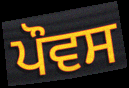
ਪੌਵਸ